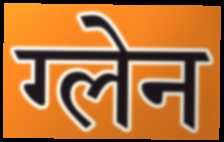
ग्लेन